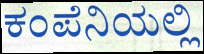
ಕಂಪೆನಿಯಲ್ಲಿ